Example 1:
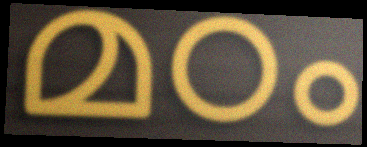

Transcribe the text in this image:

മഠം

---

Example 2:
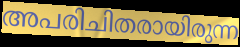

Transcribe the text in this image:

അപരിചിതരായിരുന്ന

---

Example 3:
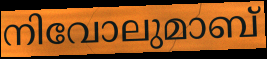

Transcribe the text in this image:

നിവോലുമാബ്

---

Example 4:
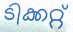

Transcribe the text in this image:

ടിക്കറ്റ്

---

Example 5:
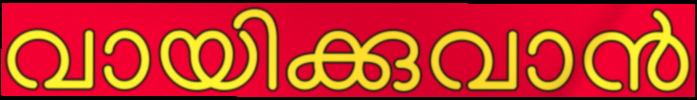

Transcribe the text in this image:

വായിക്കുവാൻ